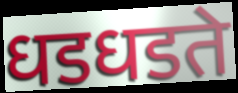
धडधडते